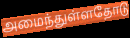
அமைந்துள்ளதோடு